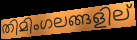
തിമിംഗലങ്ങളില്